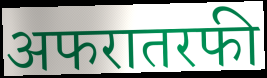
अफरातरफी